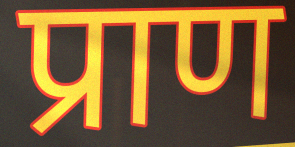
प्राण